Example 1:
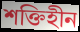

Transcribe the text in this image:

শক্তিহীন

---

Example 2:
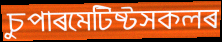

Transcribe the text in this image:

চুপাৰমেটিষ্টসকলৰ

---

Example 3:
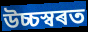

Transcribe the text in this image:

উচ্চস্বৰত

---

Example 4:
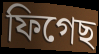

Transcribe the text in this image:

ফিগেছ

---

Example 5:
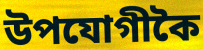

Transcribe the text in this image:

উপযোগীকৈ